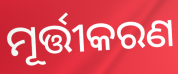
ମୂର୍ତ୍ତୀକରଣ